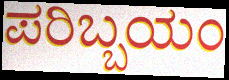
ಪರಿಬ್ಬಯಂ